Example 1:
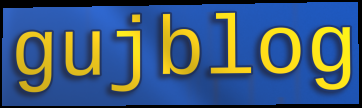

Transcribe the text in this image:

gujblog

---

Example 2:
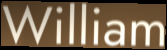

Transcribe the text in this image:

William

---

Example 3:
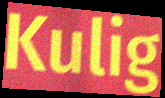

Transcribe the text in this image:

Kulig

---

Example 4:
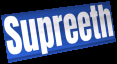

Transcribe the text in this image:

Supreeth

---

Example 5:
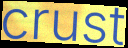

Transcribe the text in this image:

crust